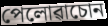
পেলোৱাচোন